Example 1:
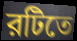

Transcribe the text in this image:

রটিতে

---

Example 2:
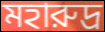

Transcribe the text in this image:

মহারুদ্র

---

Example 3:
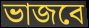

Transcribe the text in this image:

ভাজবে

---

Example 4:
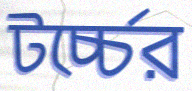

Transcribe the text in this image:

টর্চ্চের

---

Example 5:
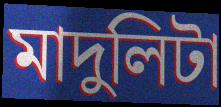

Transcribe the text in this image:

মাদুলিটা